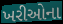
ખરીઓના